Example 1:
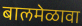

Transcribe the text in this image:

बालमेळावा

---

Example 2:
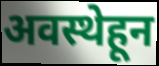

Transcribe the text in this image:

अवस्थेहून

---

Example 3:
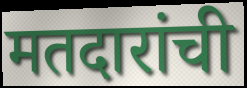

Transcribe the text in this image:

मतदारांची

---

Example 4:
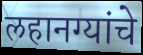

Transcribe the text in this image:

लहानग्यांचे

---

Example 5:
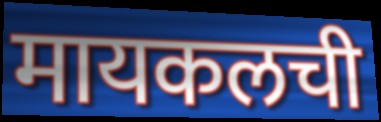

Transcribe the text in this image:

मायकलची